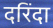
दरिंदा